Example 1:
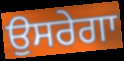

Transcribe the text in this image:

ਉਸਰੇਗਾ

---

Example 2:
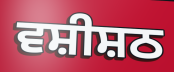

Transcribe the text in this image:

ਵਸ਼ੀਸ਼ਠ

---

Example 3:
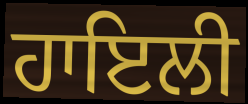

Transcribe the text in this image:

ਹਾਇਲੀ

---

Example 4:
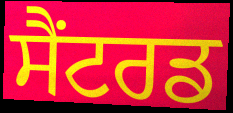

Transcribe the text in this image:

ਸੈਂਟਰਡ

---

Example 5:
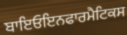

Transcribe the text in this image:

ਬਾਇਓਇਨਫਾਰਮੈਟਿਕਸ